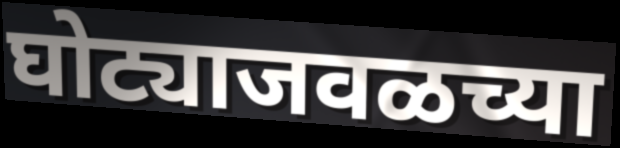
घोट्याजवळच्या